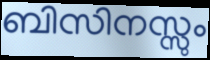
ബിസിനസ്സും